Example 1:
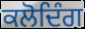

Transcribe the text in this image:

ਕਲੋਦਿੰਗ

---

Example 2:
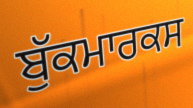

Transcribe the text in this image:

ਬੁੱਕਮਾਰਕਸ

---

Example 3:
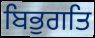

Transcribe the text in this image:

ਬਿਭੁਗਤਿ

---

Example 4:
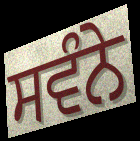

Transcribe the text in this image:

ਸਵੰਨੇ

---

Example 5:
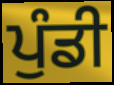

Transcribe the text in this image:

ਪੁੰਡੀ